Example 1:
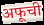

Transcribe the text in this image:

अफूची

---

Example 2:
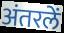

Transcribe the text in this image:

अंतरलें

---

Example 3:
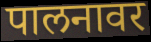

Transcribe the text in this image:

पालनावर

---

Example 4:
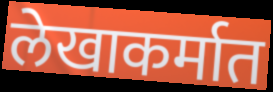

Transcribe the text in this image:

लेखाकर्मात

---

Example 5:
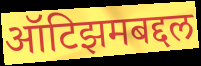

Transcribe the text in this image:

ऑटिझमबद्दल